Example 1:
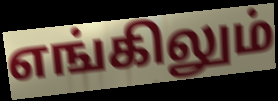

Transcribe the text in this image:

எங்கிலும்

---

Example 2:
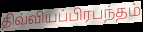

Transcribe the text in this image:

திவ்வியப்பிரபந்தம்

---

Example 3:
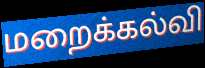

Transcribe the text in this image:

மறைக்கல்வி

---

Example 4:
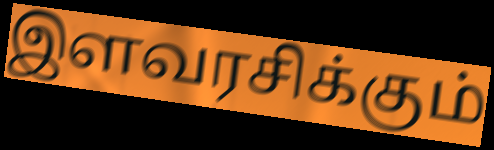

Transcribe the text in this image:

இளவரசிக்கும்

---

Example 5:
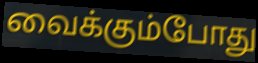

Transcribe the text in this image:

வைக்கும்போது